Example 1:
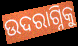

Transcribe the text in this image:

ଉଦରାଗ୍ନିକୁ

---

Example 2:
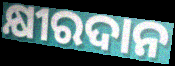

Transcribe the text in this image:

କ୍ଷୀରଦାନ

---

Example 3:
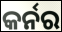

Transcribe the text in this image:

କର୍ନର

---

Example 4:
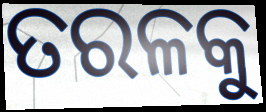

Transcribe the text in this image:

ତରଳକୁ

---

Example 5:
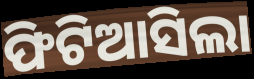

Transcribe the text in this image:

ଫିଟିଆସିଲା